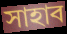
সাহাব